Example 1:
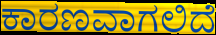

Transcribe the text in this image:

ಕಾರಣವಾಗಲಿದೆ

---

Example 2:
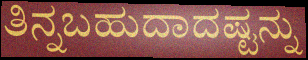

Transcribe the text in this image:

ತಿನ್ನಬಹುದಾದಷ್ಟನ್ನು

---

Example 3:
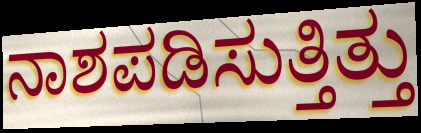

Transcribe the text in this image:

ನಾಶಪಡಿಸುತ್ತಿತ್ತು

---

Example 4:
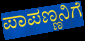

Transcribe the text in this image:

ಪಾಪಣ್ಣನಿಗೆ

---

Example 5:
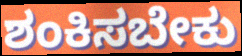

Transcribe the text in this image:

ಶಂಕಿಸಬೇಕು